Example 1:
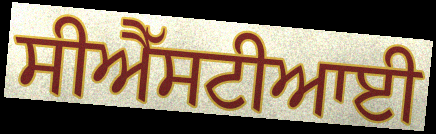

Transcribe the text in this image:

ਸੀਐੱਸਟੀਆਈ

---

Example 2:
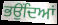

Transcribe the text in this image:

ਭਉਂਦਿਆਂ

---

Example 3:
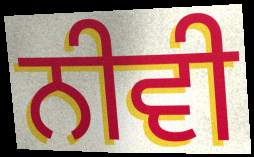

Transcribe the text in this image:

ਨੀਵੀ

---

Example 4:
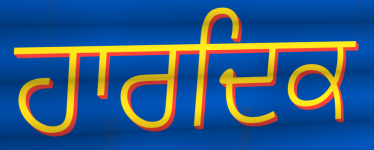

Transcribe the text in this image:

ਹਾਰਦਿਕ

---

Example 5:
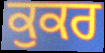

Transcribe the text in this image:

ਕੁਕਰ